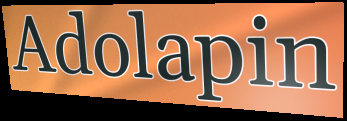
Adolapin